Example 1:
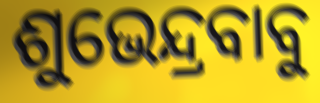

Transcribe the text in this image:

ଶୁଭେନ୍ଦ୍ରବାବୁ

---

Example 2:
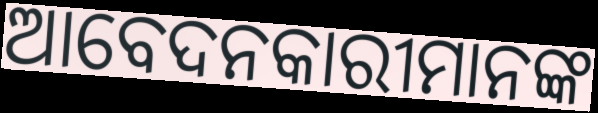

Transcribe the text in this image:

ଆବେଦନକାରୀମାନଙ୍କ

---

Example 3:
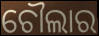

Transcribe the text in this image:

ଚୌଲାର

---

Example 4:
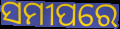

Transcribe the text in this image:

ସମୀପରେ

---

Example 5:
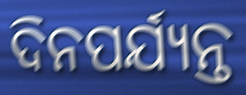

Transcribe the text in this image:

ଦିନପର୍ଯ୍ୟନ୍ତ